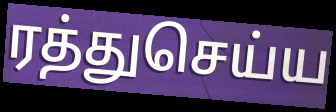
ரத்துசெய்ய